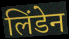
लिंडेन